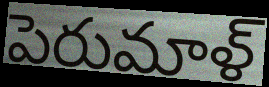
పెరుమాళ్